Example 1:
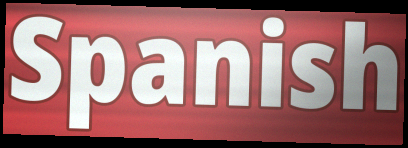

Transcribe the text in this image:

Spanish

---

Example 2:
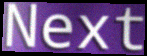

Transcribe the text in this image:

Next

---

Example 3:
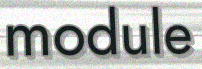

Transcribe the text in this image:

module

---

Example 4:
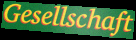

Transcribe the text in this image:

Gesellschaft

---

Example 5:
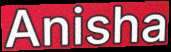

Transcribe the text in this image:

Anisha